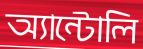
অ্যান্টোলি